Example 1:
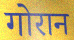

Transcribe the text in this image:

गोरान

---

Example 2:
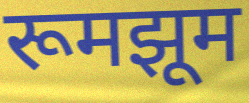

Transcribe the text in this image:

रूमझूम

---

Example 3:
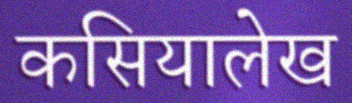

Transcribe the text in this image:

कसियालेख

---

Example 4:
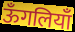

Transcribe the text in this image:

ऊँगलियाँ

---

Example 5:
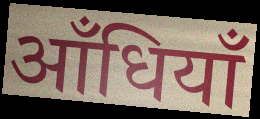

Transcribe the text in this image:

आँधियाँ